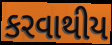
કરવાથીય